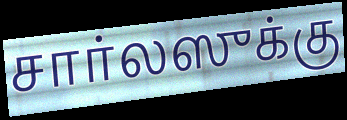
சார்லஸுக்கு